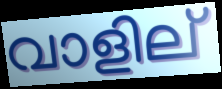
വാളില്